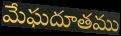
మేఘదూతము